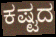
ಕಷ್ಟದ